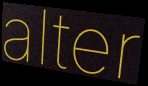
alter